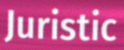
Juristic